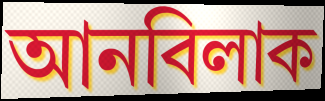
আনবিলাক